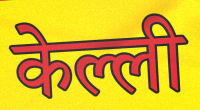
केल्ली